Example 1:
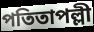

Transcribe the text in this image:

পতিতাপল্লী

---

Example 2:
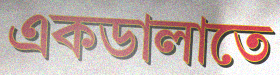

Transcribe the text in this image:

একডালাতে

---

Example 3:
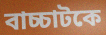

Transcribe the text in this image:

বাচ্চাটকে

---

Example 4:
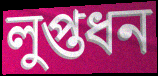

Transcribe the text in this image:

লুপ্তধন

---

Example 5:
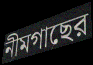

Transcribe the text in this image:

নীমগাছের